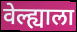
वेल्ह्याला